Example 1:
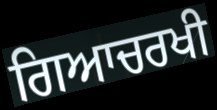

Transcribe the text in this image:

ਗਿਆਚਰਖੀ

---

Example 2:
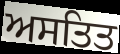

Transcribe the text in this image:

ਅਸਤਿਤ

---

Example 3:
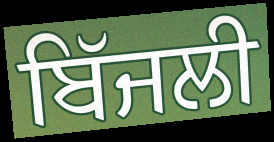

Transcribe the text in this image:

ਬਿੱਜਲੀ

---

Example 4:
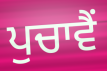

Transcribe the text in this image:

ਪੁਚਾਵੈਂ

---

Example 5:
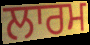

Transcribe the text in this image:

ਲਾਰਮ